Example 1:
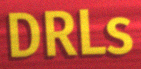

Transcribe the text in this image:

DRLs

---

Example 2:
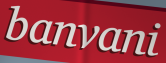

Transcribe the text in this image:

banvani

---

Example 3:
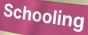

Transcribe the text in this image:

Schooling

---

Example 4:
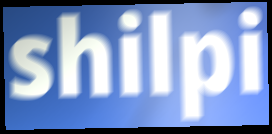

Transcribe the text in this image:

shilpi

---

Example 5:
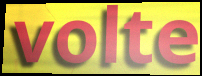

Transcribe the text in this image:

volte